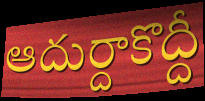
ఆదుర్దాకొద్దీ